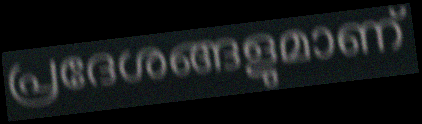
പ്രദേശങ്ങളുമാണ്